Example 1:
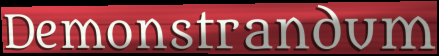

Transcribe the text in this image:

Demonstrandum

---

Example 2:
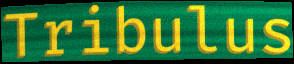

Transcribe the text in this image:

Tribulus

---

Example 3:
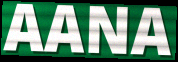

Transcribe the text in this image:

AANA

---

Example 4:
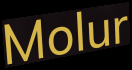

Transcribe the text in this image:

Molur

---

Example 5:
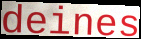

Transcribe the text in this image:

deines